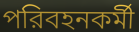
পরিবহনকর্মী